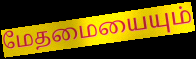
மேதமையையும்